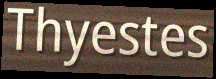
Thyestes